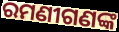
ରମଣୀଗଣଙ୍କ